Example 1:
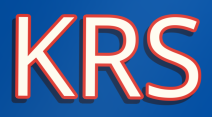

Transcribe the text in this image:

KRS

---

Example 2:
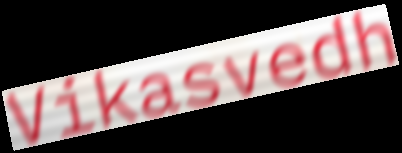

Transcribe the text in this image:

Vikasvedh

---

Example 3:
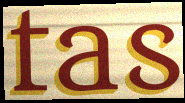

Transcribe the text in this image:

tas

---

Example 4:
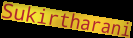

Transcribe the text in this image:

Sukirtharani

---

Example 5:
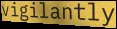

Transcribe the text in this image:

vigilantly